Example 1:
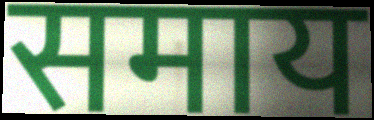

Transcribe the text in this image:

समाय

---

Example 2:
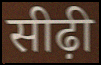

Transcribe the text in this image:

सीढ़ी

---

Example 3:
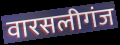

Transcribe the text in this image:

वारसलीगंज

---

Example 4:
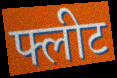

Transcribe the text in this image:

फ्लीट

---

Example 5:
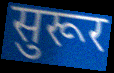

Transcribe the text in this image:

सुरूर